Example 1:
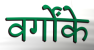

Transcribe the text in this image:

वर्गोंके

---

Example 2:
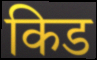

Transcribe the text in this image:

किड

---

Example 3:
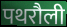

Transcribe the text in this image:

पथरौली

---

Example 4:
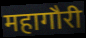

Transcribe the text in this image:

महागौरी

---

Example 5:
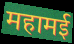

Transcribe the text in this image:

महामई